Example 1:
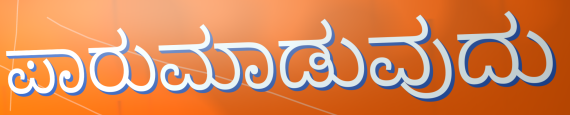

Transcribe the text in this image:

ಪಾರುಮಾಡುವುದು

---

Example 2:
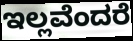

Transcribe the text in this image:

ಇಲ್ಲವೆಂದರೆ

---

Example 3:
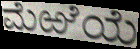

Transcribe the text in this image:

ಮೆಱೆಯೆ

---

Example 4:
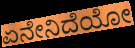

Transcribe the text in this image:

ಏನೇನಿದೆಯೋ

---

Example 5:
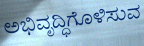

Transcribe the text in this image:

ಅಭಿವೃದ್ಧಿಗೊಳಿಸುವ